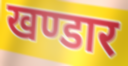
खण्डार